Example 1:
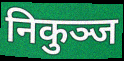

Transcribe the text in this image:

निकुञ्ज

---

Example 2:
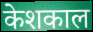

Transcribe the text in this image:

केशकाल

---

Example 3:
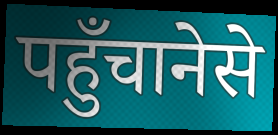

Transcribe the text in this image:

पहुँचानेसे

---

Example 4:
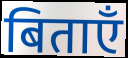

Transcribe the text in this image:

बिताएँ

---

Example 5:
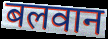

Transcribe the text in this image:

बलवान